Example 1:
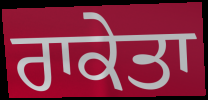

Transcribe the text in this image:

ਰਾਕੇਤਾ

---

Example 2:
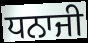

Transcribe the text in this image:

ਧਨਾਜੀ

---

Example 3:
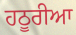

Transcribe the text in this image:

ਹਠੂਰੀਆ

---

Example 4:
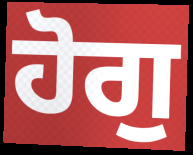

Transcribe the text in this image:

ਹੋਗੁ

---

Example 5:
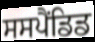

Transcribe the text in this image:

ਸਸਪੈਂਡਿਡ